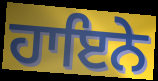
ਹਾਇਨੇ